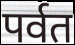
पर्वत